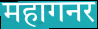
महागनर